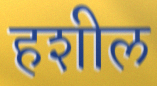
हशील